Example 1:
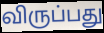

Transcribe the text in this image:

விருப்பது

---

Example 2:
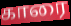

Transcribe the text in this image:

காரை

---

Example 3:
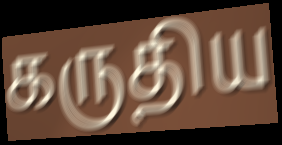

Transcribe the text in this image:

கருதிய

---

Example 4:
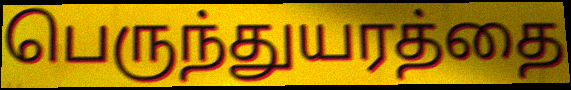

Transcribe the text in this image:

பெருந்துயரத்தை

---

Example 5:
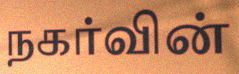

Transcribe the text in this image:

நகர்வின்